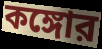
কঙ্গোর